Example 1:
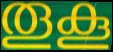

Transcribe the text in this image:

തൂകൂ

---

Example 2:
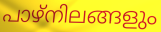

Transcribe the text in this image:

പാഴ്നിലങ്ങളും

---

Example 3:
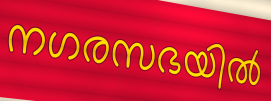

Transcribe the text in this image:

നഗരസഭയിൽ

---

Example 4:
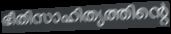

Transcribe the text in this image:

ഭീതിസാഹിത്യത്തിന്റെ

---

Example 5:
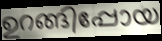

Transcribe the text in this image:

ഉറങ്ങിപ്പോയ